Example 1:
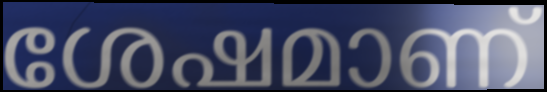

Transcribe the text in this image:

ശേഷമാണ്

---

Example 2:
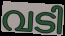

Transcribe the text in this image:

വടി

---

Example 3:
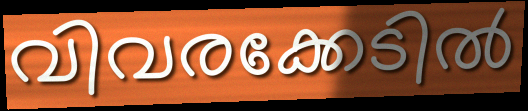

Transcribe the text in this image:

വിവരക്കേടിൽ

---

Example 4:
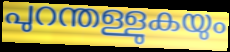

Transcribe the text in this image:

പുറന്തള്ളുകയും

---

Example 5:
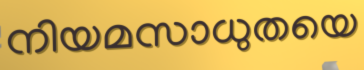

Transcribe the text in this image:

നിയമസാധുതയെ